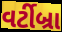
વર્ટીબ્રા